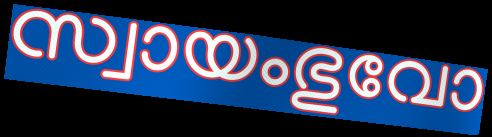
സ്വായംഭുവോ